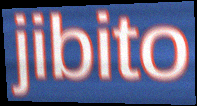
jibito